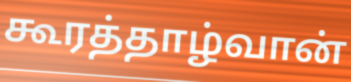
கூரத்தாழ்வான்